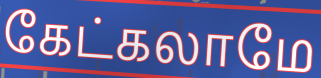
கேட்கலாமே